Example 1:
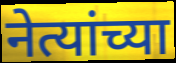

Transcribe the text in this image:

नेत्यांच्या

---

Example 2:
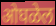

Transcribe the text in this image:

ओघळेल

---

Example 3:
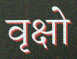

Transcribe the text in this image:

वृक्षो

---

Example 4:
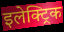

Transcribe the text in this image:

इलेक्ट्रिक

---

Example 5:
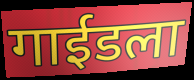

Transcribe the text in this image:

गाईडला